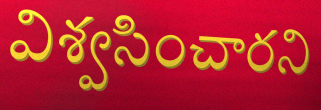
విశ్వసించారని